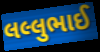
લલ્લુભાઈ